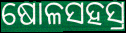
ଷୋଳସହସ୍ର